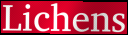
Lichens